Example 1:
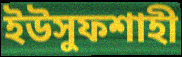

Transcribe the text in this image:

ইউসুফশাহী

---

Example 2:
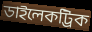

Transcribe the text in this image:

ডাইলেকট্রিক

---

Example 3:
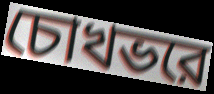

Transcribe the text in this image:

চোখভরে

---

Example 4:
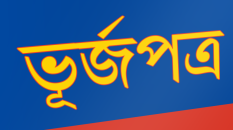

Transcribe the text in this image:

ভূর্জপত্র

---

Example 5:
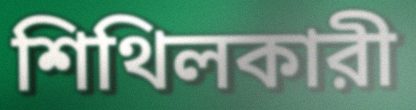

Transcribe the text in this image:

শিথিলকারী